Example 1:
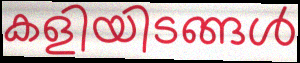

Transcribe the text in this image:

കളിയിടങ്ങൾ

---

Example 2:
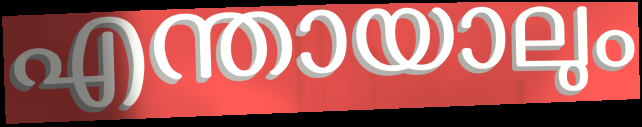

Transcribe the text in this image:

എന്തായാലും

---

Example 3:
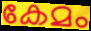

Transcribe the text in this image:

കേമം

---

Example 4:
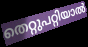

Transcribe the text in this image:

തെറ്റുപറ്റിയാൽ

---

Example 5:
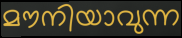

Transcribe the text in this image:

മൗനിയാവുന്ന